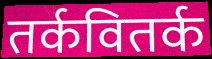
तर्कवितर्क